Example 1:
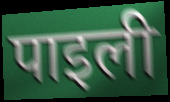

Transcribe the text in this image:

पाइली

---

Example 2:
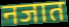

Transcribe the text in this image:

नजात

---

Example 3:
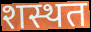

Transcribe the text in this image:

शस्थत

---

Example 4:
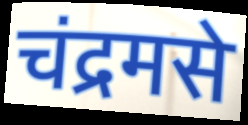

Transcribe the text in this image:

चंद्रमसे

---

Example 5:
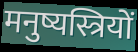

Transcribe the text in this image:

मनुष्यस्त्रियों